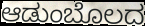
ಆಡುಂಬೊಲದ